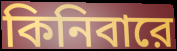
কিনিবারে